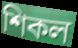
শিকল